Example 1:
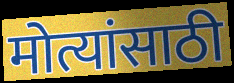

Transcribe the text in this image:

मोत्यांसाठी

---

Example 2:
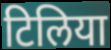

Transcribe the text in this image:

टिलिया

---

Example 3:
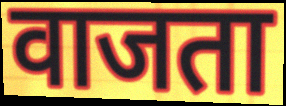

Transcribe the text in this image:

वाजता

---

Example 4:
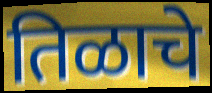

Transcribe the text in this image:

तिळाचे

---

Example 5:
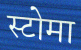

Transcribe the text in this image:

स्टोमा